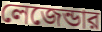
লেজেন্ডার